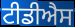
ਟੀਡੀਐਸ